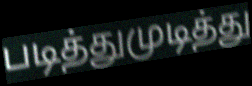
படித்துமுடித்து